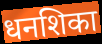
धनशिका